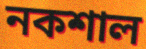
নকশাল